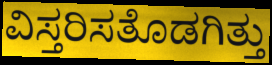
ವಿಸ್ತರಿಸತೊಡಗಿತ್ತು